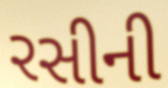
રસીની